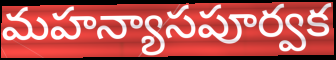
మహన్యాసపూర్వక